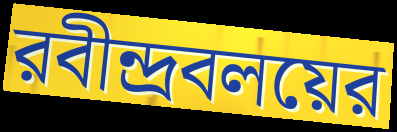
রবীন্দ্রবলয়ের